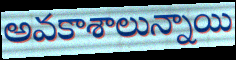
అవకాశాలున్నాయి